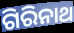
ଗିରିନାଥ